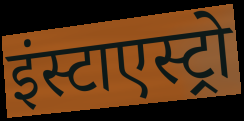
इंस्टाएस्ट्रो